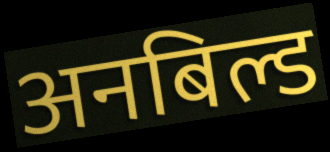
अनबिल्ड